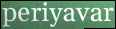
periyavar